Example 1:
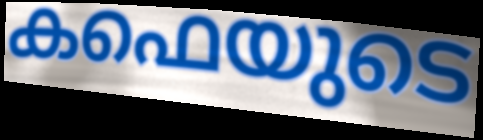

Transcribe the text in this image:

കഫെയുടെ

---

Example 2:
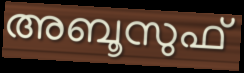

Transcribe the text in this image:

അബൂസുഫ്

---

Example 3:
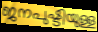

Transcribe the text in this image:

ജനപുഷ്ടിയുള്ള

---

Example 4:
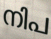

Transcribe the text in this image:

നിപ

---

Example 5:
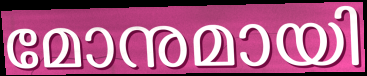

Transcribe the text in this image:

മോനുമായി